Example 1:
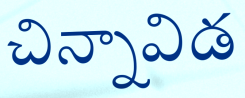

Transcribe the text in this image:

చిన్నావిడ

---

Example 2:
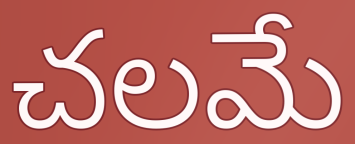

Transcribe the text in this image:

చలమే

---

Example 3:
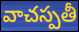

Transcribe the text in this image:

వాచస్పతీ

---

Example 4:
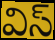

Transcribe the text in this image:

విస్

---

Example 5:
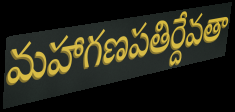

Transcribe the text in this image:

మహాగణపతిర్దేవతా